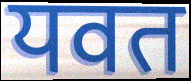
यवत